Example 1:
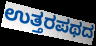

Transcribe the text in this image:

ಉತ್ತರಪಥದ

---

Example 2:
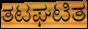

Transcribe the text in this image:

ತಟಘಟಿತ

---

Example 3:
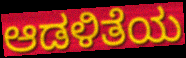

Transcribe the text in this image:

ಆಡಳಿತೆಯ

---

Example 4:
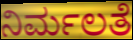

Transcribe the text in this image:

ನಿರ್ಮಲತೆ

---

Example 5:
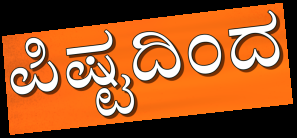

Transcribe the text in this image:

ಪಿಷ್ಟದಿಂದ